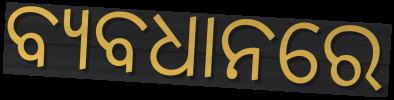
ବ୍ୟବଧାନରେ